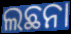
ଲଛନା